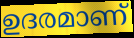
ഉദരമാണ്